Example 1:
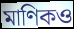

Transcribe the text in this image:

মাণিকও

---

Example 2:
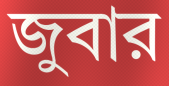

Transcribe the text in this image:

জুবার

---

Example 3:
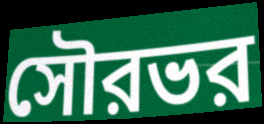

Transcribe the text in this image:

সৌরভর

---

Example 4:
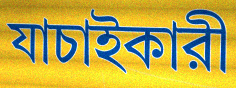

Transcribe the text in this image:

যাচাইকারী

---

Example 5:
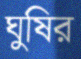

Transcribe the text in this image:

ঘুষির